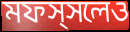
মফস্‌সলেও